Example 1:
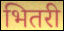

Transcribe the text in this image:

भितरी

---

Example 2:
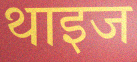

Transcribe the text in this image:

थाइज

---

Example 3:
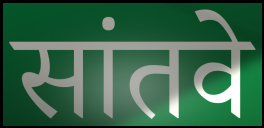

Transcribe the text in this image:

सांतवे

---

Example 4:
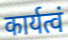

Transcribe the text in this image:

कार्यत्वं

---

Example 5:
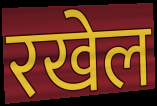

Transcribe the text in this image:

रखेल